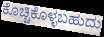
ಕೊಚ್ಚಿಕೊಳ್ಳಬಹುದು